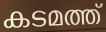
കടമത്ത്